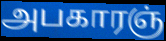
அபகாரஞ்